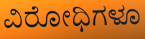
ವಿರೋಧಿಗಳೂ